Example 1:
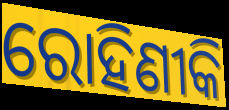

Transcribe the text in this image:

ରୋହିଣୀକି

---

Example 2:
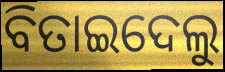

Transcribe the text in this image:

ବିତାଇଦେଲୁ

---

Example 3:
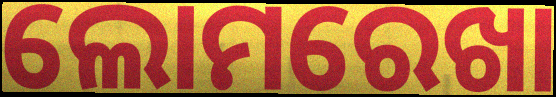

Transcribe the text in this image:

ଲୋମରେଖା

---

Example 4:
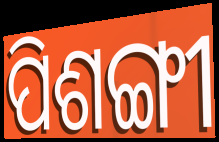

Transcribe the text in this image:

ପିଶଙ୍ଗୀ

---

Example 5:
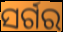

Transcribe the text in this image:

ସର୍ଗର